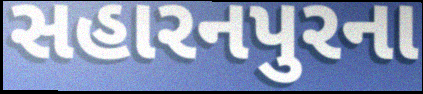
સહારનપુરના